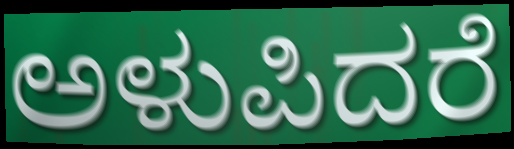
ಅಳುಪಿದರೆ